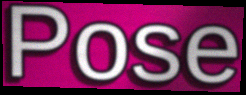
Pose